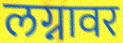
लग्नावर